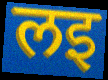
लइ